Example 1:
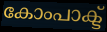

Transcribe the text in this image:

കോംപാക്ട്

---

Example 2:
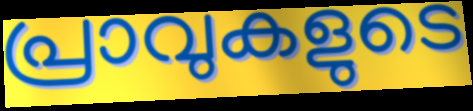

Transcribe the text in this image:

പ്രാവുകളുടെ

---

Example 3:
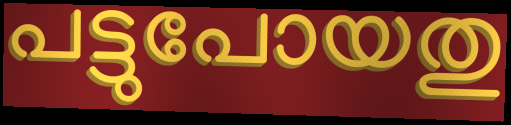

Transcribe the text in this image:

പട്ടുപോയതു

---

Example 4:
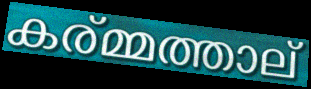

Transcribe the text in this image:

കര്മ്മത്താല്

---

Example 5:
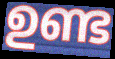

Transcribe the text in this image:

ഉണ്ട